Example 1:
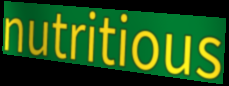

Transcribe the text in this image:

nutritious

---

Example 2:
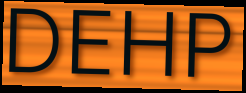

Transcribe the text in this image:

DEHP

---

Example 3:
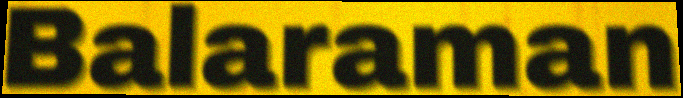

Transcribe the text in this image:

Balaraman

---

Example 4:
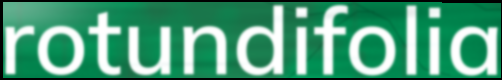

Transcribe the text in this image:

rotundifolia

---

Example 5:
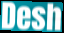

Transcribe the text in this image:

Desh